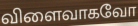
விளைவாகவோ